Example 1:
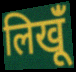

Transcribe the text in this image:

लिखूंँ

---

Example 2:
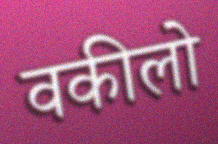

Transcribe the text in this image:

वकीलो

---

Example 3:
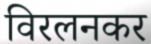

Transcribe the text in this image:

विरलनकर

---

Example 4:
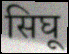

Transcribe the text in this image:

सिघू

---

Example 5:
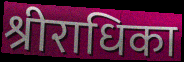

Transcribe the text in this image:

श्रीराधिका